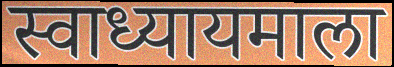
स्वाध्यायमाला